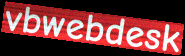
vbwebdesk